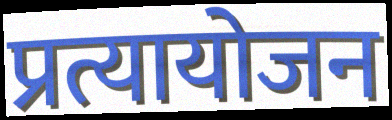
प्रत्यायोजन